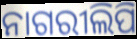
ନାଗରୀଲିପି